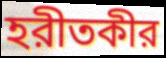
হরীতকীর